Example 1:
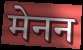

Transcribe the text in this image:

मेनन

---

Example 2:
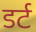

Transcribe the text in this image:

डर्ट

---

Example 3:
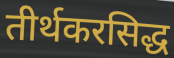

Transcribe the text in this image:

तीर्थकरसिद्ध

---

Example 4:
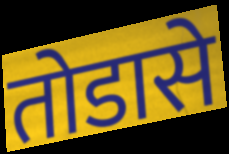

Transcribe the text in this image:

तोडासे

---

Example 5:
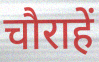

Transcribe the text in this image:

चौराहें